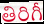
తిరిగీ